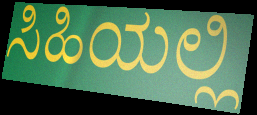
ಸಿಹಿಯಲ್ಲಿ